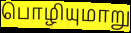
பொழியுமாறு